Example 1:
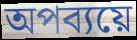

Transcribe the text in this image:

অপব্যয়ে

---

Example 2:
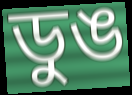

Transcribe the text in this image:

ডুঙ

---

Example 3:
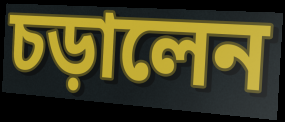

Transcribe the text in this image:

চড়ালেন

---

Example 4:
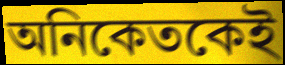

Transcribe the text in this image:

অনিকেতকেই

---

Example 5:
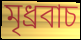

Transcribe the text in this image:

মৃধ্রবাচ